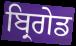
ਬ੍ਰਿਗੇਡ